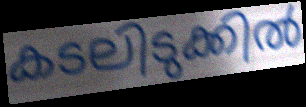
കടലിടുക്കിൽ